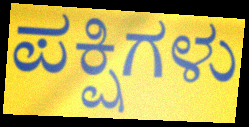
ಪಕ್ಷಿಗಳು